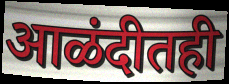
आळंदीतही